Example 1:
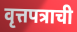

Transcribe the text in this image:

वृत्तपत्राची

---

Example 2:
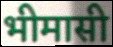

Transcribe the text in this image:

भीमासी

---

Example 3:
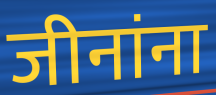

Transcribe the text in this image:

जीनांना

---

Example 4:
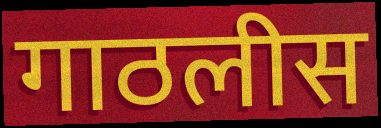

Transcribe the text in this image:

गाठलीस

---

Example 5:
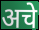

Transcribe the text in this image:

अचे